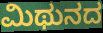
ಮಿಥುನದ